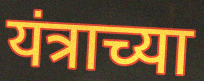
यंत्राच्या